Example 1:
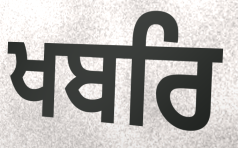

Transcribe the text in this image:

ਖਬਰਿ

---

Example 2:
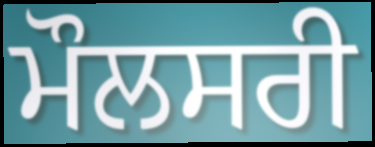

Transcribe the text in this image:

ਮੌਲਸਰੀ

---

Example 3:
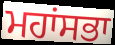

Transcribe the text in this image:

ਮਹਾਂਸਭਾ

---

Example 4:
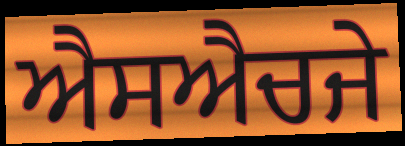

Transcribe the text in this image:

ਐਸਐਚਜੇ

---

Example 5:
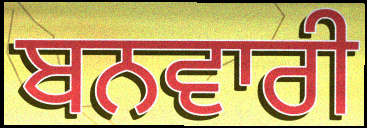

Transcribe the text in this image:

ਬਨਵਾਰੀ